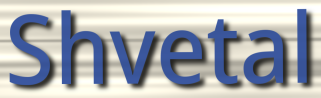
Shvetal